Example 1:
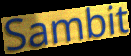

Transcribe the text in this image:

Sambit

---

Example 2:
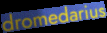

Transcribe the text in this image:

dromedarius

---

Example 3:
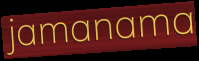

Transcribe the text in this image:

jamanama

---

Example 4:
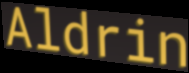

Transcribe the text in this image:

Aldrin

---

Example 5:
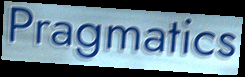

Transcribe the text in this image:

Pragmatics